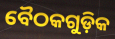
ବୈଠକଗୁଡ଼ିକ